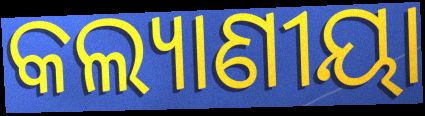
କଲ୍ୟାଣୀୟା